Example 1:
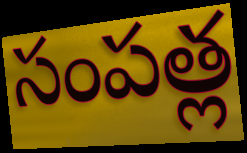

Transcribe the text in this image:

సంపత్ల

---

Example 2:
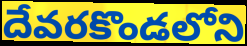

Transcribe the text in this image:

దేవరకొండలోని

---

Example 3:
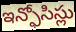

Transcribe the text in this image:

ఇన్ఫోసిస్లు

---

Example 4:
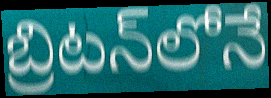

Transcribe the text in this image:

బ్రిటన్‌లోనే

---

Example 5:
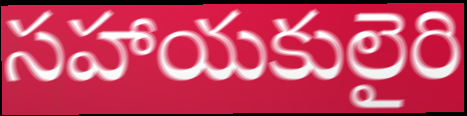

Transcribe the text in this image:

సహాయకులైరి